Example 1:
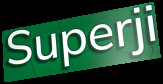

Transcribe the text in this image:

Superji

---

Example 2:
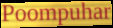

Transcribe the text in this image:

Poompuhar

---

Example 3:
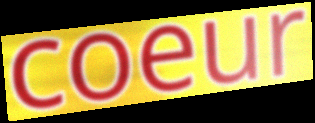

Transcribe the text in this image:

coeur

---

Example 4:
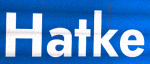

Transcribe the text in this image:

Hatke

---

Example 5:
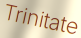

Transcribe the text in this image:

Trinitate